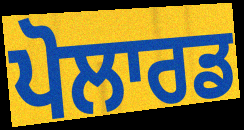
ਪੋਲਾਰਡ